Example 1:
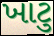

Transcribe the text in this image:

ખાટુ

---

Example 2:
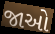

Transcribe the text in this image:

જાઓ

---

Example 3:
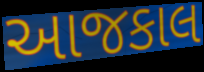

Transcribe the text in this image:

આજકાલ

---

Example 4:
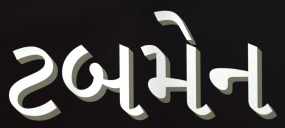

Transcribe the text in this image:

ટબમેન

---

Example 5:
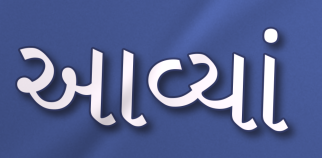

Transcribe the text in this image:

આવ્યાં